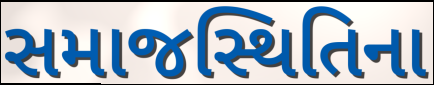
સમાજસ્થિતિના